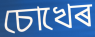
চোখেৰ